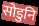
सोडुनि